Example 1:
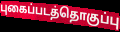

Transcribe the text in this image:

புகைப்படத்தொகுப்பு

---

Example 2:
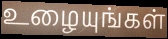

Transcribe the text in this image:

உழையுங்கள்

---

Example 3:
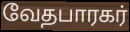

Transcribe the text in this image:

வேதபாரகர்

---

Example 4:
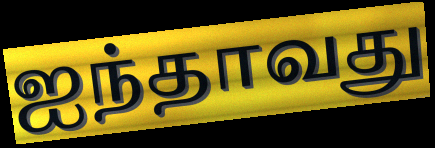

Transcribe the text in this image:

ஐந்தாவது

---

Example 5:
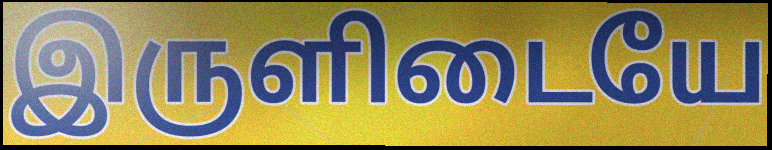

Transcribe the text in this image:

இருளிடையே